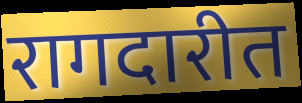
रागदारीत